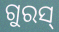
ଗୁରସ୍